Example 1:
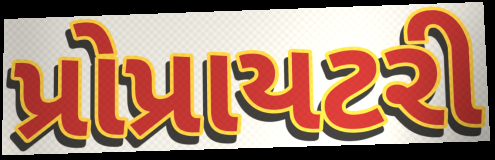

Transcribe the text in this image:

પ્રોપ્રાયટરી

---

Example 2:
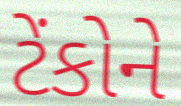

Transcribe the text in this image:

ટેંકોને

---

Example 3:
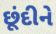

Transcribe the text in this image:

છૂંદીને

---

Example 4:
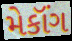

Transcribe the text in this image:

મેકૉંગ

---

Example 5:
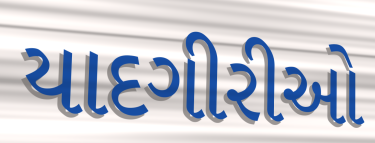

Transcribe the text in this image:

યાદગીરીઓ